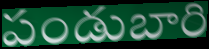
పండుబారి